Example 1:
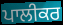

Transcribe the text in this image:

ਪਾਲੀਕਰ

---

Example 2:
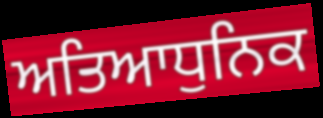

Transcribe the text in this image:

ਅਤਿਆਧੁਨਿਕ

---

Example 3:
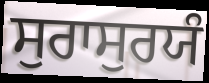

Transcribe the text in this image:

ਸੁਰਾਸੁਰਯੰ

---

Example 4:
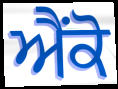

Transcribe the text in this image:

ਐਂਕੋ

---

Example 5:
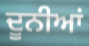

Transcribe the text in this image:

ਦੂਨੀਆਂ